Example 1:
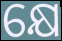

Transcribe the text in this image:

କ୍ଷେ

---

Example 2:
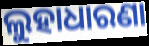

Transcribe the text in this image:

ଲୁହାଧାରଣା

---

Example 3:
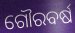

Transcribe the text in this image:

ଗୌରବର୍ଷ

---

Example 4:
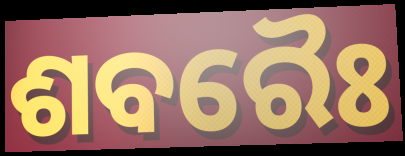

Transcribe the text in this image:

ଶବରୈଃ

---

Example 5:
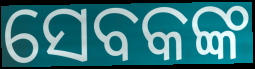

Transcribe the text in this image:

ସେବକଙ୍କ